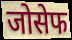
जोसेफ